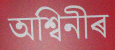
অশ্বিনীৰ